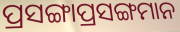
ପ୍ରସଙ୍ଗାପ୍ରସଙ୍ଗମାନ